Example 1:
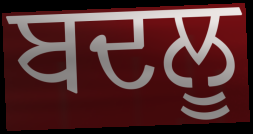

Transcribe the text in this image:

ਬਦਲੂ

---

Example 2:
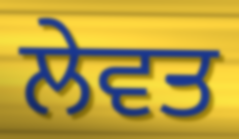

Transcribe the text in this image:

ਲੇਵਤ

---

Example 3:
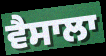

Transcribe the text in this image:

ਵੈਸਾਲਾ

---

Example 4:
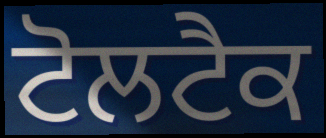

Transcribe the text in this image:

ਟੋਲਟੈਕ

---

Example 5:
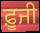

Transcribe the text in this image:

ਫ਼ੂਜੀ